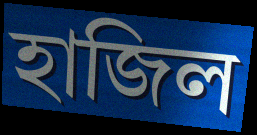
হাজিল